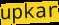
upkar